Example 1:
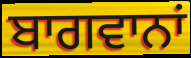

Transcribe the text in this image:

ਬਾਗਵਾਨਾਂ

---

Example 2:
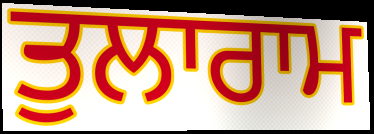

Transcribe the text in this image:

ਤੁਲਾਰਾਮ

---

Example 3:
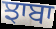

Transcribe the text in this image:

ਝਾਬਾ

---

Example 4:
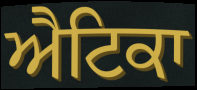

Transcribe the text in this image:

ਐਟਿਕਾ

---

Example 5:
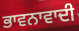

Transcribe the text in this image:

ਭਾਵਨਾਵਾਦੀ